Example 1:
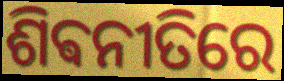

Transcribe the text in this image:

ଶିଵନୀତିରେ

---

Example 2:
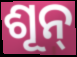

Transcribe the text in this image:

ଶୂନ୍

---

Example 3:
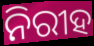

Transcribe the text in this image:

ନିରୀହ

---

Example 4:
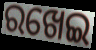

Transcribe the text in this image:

ରଖେଇ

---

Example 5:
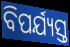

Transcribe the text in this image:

ବିପର୍ଯ୍ୟସ୍ତ